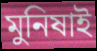
মুনিষাই